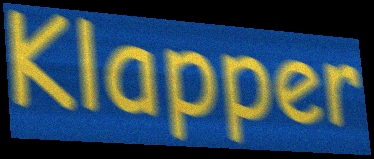
Klapper